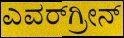
ಎವರ್‌ಗ್ರೀನ್